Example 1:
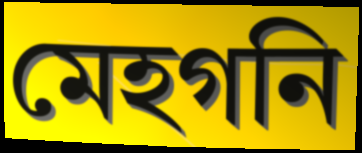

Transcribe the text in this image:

মেহগনি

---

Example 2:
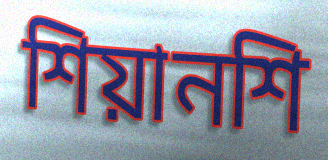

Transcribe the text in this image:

শিয়ানশি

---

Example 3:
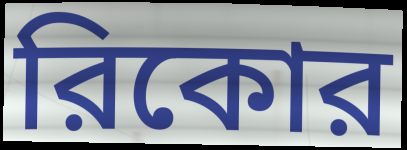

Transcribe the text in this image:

রিকোর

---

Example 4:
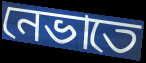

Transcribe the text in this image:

নেভাতে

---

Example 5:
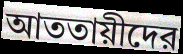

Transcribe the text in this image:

আততায়ীদের